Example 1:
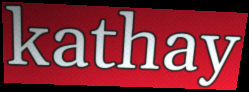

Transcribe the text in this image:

kathay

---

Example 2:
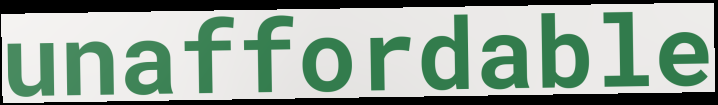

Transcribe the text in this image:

unaffordable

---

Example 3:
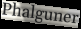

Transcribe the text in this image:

Phalguner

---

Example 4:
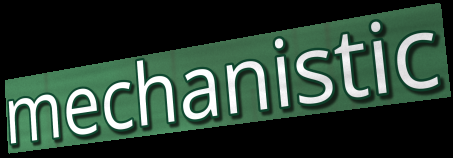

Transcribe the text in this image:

mechanistic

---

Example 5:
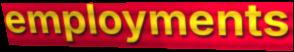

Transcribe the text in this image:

employments